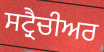
ਸਟ੍ਰੈਚੀਅਰ